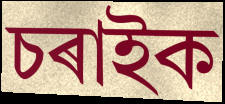
চৰাইক